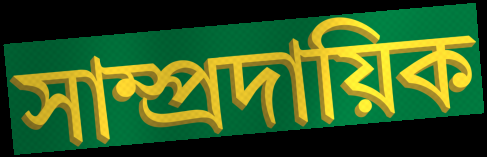
সাম্প্ৰদায়িক